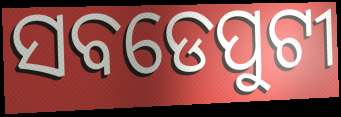
ସବଡେପୁଟୀ